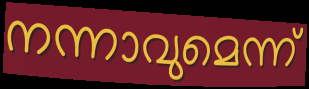
നന്നാവുമെന്ന്